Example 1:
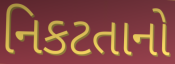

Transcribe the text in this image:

નિકટતાનો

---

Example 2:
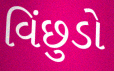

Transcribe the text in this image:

વિંછુડો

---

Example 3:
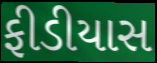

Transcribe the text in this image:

ફીડીયાસ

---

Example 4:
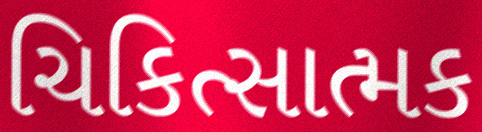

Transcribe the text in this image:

ચિકિત્સાત્મક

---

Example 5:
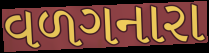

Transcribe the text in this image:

વળગનારા